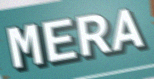
MERA